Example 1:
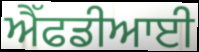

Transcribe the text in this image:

ਐੱਫਡੀਆਈ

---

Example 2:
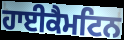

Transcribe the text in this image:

ਹਾਈਕੈਮਟਿਨ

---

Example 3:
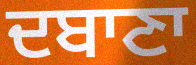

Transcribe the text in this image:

ਦਬਾਣਾ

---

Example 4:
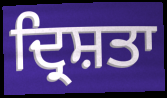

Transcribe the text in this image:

ਦ੍ਰਿਸ਼ਤਾ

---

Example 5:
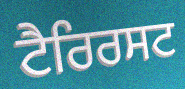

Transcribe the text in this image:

ਟੈਰਿਰਸਟ